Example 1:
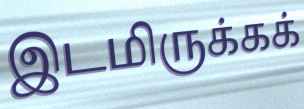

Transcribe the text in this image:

இடமிருக்கக்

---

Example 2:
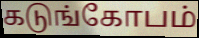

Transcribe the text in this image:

கடுங்கோபம்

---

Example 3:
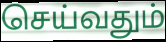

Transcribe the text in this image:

செய்வதும்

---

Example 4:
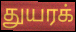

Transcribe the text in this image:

துயரக்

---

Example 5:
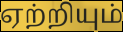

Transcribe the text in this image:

ஏற்றியும்